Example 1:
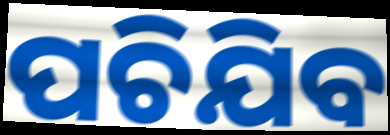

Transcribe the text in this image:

ପଚିଯିବ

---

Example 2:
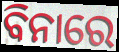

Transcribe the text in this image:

ବିନାରେ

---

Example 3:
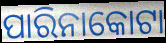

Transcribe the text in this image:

ପାରିନାକୋଟା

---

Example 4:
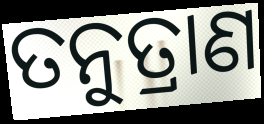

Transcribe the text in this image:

ତନୁତ୍ରାଣ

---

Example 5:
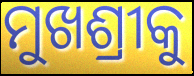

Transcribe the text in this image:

ମୁଖଶ୍ରୀକୁ